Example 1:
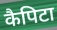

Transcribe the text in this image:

कैपिटा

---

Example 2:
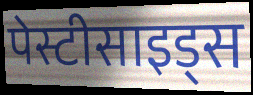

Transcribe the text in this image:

पेस्टीसाइड्स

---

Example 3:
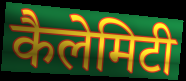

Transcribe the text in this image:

कैलेमिटी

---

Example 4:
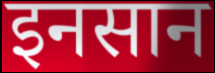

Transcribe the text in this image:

इनसान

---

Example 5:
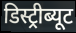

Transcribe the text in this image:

डिस्ट्रीब्यूट